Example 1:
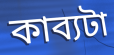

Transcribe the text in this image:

কাব্যটা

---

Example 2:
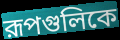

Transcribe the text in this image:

রূপগুলিকে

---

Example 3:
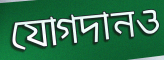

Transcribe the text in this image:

যোগদানও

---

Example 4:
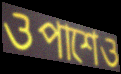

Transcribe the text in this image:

ওপাশেও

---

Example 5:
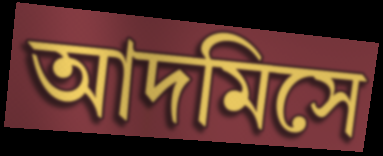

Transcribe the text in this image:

আদমিসে